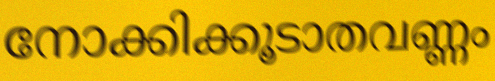
നോക്കിക്കൂടാതവണ്ണം